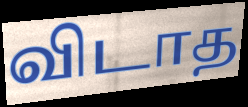
விடாத